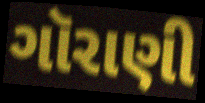
ગૉરાણી